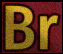
Br